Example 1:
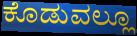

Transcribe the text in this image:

ಕೊಡುವಲ್ಲೂ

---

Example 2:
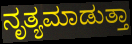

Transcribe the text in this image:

ನೃತ್ಯಮಾಡುತ್ತಾ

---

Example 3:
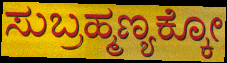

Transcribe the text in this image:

ಸುಬ್ರಹ್ಮಣ್ಯಕ್ಕೋ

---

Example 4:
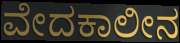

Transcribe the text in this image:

ವೇದಕಾಲೀನ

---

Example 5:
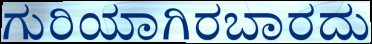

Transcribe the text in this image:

ಗುರಿಯಾಗಿರಬಾರದು